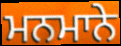
ਮਨਮਾਨੇ